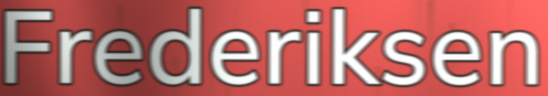
Frederiksen